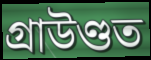
গ্ৰাউণ্ডত